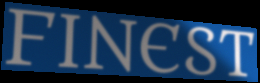
FINEST